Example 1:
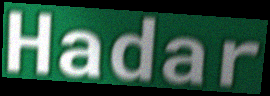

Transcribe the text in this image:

Hadar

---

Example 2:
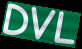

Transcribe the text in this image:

DVL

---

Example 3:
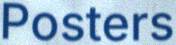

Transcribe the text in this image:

Posters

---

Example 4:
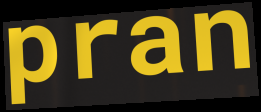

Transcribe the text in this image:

pran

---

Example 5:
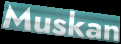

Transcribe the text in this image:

Muskan